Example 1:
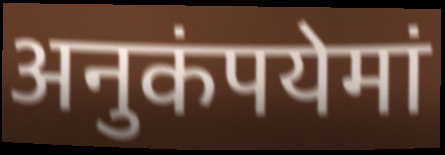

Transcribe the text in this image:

अनुकंपयेमां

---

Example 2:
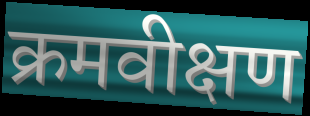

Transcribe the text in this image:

क्रमवीक्षण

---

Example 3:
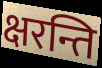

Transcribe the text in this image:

क्षरन्ति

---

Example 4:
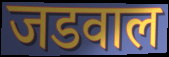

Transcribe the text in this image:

जडवाल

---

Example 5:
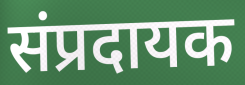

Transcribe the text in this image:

संप्रदायक